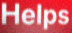
Helps